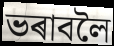
ভৰাবলৈ